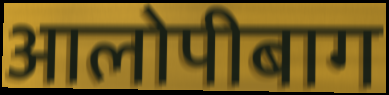
आलोपीबाग